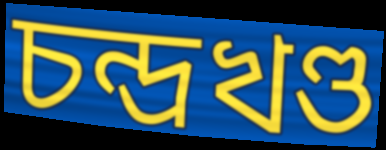
চন্দ্রখণ্ড